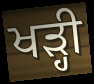
ਖੜ੍ਹੀ